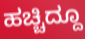
ಹಚ್ಚಿದ್ದೂ